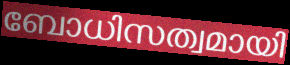
ബോധിസത്വമായി